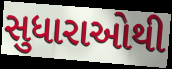
સુધારાઓથી